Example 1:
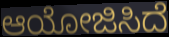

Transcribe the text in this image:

ಆಯೋಜಿಸಿದೆ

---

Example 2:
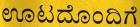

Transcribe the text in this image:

ಊಟದೊಂದಿಗೆ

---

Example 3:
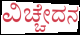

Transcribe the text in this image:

ವಿಚ್ಚೇದನ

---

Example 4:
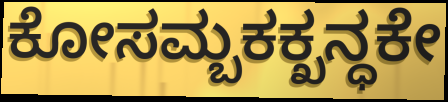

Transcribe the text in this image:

ಕೋಸಮ್ಬಕಕ್ಖನ್ಧಕೇ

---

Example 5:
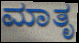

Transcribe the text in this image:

ಮಾತೃ